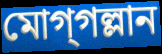
মোগ্‌গল্লান